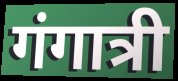
गंगात्री